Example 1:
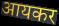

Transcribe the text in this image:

आयकर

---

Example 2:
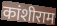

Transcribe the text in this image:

कांशीराम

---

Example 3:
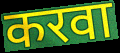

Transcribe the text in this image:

करवा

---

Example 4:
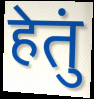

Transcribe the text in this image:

हेतुं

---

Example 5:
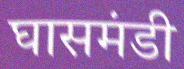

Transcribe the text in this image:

घासमंडी